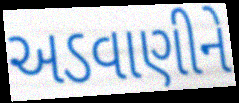
અડવાણીને